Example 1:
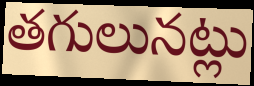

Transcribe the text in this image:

తగులునట్లు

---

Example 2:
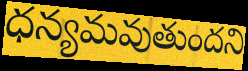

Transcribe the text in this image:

ధన్యమవుతుందని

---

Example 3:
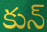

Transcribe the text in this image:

కున్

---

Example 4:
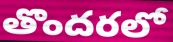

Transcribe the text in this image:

తొందరలో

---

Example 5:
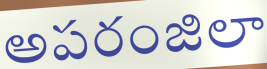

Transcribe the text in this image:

అపరంజిలా